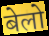
बेलो